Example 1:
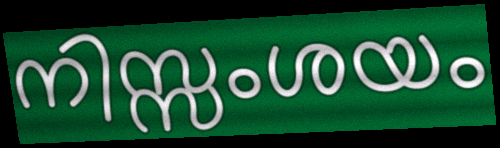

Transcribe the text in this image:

നിസ്സംശയം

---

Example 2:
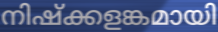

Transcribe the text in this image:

നിഷ്ക്കളങ്കമായി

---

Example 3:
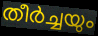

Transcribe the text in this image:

തീർച്ചയും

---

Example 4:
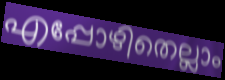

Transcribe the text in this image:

എപ്പോഴിതെല്ലാം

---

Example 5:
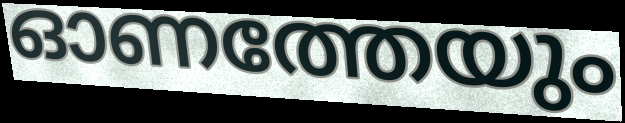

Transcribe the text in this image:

ഓണത്തേയും